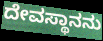
ದೇವಸ್ಥಾನನು